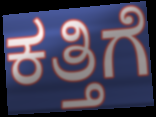
ಕತ್ತಿಗೆ